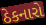
ઠેકનારો